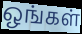
ஒங்கள்